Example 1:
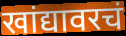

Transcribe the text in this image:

खांद्यावरचं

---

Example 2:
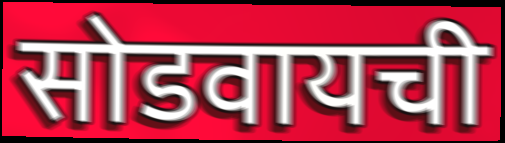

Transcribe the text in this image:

सोडवायची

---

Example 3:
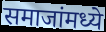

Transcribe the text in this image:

समाजांमध्ये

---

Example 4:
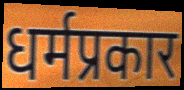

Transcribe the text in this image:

धर्मप्रकार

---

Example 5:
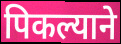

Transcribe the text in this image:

पिकल्याने